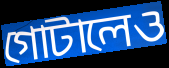
গোটালেও